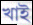
খাই